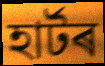
হাৰ্টৰ